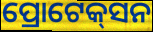
ପ୍ରୋଟେକ୍‌ସନ